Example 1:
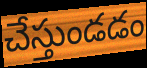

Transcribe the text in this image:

చేస్తుండడం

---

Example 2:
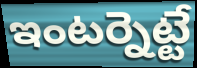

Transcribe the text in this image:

ఇంటర్నెట్టే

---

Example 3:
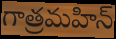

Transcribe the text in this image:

గాత్రమహిన్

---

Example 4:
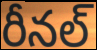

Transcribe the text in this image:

రీనల్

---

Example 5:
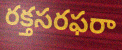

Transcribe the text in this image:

రక్తసరఫరా